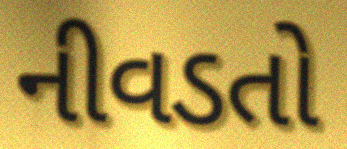
નીવડતો